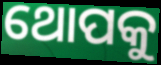
ଥୋପକୁ